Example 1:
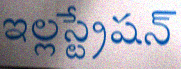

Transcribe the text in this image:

ఇల్లస్ట్రేషన్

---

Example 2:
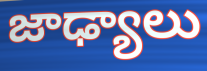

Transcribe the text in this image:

జాఢ్యాలు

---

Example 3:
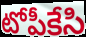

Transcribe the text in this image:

టోపీకేసి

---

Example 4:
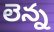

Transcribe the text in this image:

లెన్న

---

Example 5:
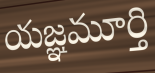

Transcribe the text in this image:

యజ్ఞమూర్తి